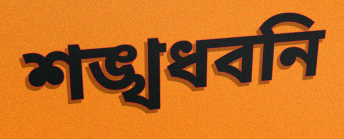
শঙ্খধবনি